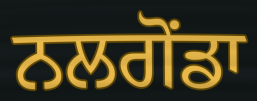
ਨਲਗੋਂਡਾ